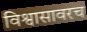
विश्वासावरच